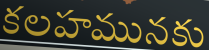
కలహమునకు